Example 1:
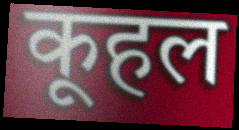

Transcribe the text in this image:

कूहल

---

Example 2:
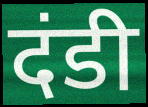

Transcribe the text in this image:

दंडी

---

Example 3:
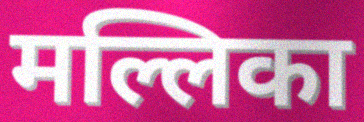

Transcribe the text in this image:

मल्लिका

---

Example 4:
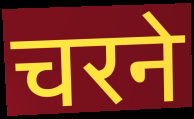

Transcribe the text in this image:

चरने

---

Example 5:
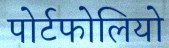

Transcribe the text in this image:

पोर्टफोलियो